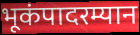
भूकंपादरम्यान